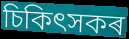
চিকিৎসকৰ